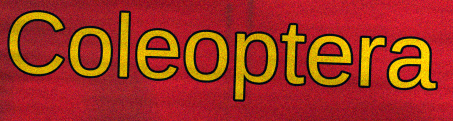
Coleoptera